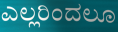
ಎಲ್ಲರಿಂದಲೂ